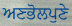
ਅਣਭੋਲਪੁਣੇ